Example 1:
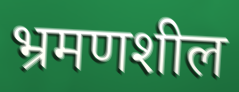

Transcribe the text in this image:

भ्रमणशील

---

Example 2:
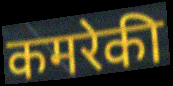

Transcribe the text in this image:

कमरेकी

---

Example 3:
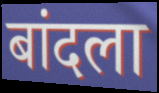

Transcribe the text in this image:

बांदला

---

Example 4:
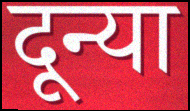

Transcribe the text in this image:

दून्या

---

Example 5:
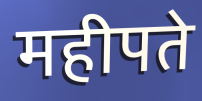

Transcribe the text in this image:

महीपते